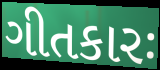
ગીતકારઃ